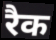
रैक